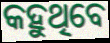
କହୁଥିବେ